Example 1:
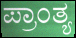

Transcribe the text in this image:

ಪ್ರಾಂತ್ಯ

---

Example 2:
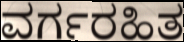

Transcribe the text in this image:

ವರ್ಗರಹಿತ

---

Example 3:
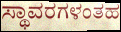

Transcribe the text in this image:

ಸ್ಥಾವರಗಳಂತಹ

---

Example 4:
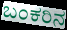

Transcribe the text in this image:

ಬಂಕರಿನ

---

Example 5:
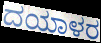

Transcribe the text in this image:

ದಯಾಳರ